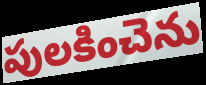
పులకించెను